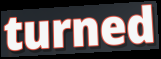
turned